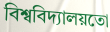
বিশ্ববিদ্য়ালয়তো